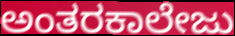
ಅಂತರಕಾಲೇಜು